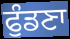
ਫੁੰਡਣਾ